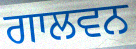
ਗਾਲਵਨ